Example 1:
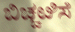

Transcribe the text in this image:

ಬಿಚ್ಚೞಿಸೆ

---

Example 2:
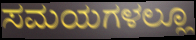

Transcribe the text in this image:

ಸಮಯಗಳಲ್ಲೂ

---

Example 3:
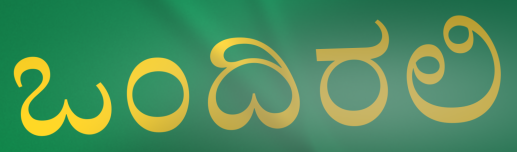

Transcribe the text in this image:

ಒಂದಿರಲಿ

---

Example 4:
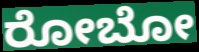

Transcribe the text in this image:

ರೋಬೋ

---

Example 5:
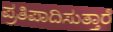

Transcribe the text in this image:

ಪ್ರತಿಪಾದಿಸುತ್ತಾರೆ